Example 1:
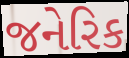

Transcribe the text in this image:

જનેરિક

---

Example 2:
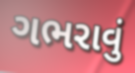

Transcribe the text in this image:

ગભરાવું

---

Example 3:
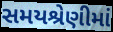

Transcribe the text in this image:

સમયશ્રેણીમાં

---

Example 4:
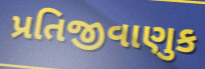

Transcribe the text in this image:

પ્રતિજીવાણુક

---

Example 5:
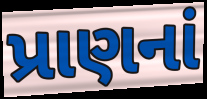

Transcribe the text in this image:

પ્રાણનાં